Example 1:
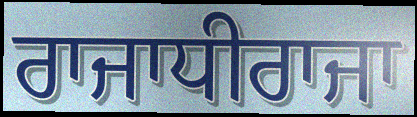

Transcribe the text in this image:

ਰਾਜਾਧੀਰਾਜਾ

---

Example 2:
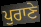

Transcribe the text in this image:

ਪੁਰਾਣੇ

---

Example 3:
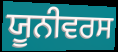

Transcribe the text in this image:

ਯੂਨੀਵਰਸ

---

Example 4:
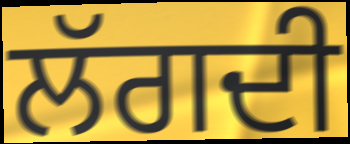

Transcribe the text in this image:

ਲੱਗਦੀ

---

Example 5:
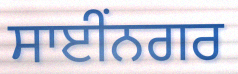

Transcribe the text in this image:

ਸਾਈਂਨਗਰ